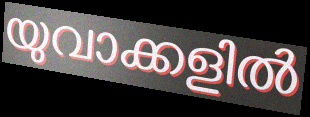
യുവാക്കളിൽ